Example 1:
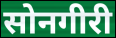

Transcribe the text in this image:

सोनगीरी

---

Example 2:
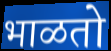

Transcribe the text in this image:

भाळतो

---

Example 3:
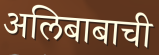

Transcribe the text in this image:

अलिबाबाची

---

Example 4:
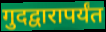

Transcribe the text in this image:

गुदद्वारापर्यंत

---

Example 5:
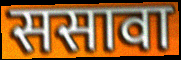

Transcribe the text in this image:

ससावा